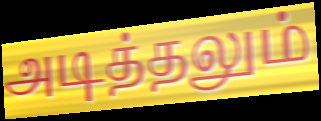
அடித்தலும்